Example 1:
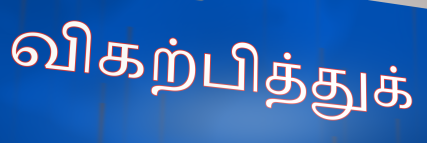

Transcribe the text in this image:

விகற்பித்துக்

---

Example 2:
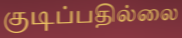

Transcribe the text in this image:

குடிப்பதில்லை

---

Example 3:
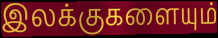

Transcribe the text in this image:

இலக்குகளையும்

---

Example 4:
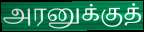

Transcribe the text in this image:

அரனுக்குத்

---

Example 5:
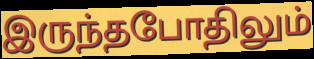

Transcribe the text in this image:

இருந்தபோதிலும்